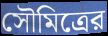
সৌমিত্রের